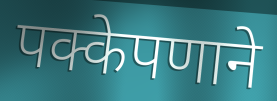
पक्केपणाने